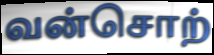
வன்சொற்